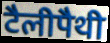
टैलीपैथी